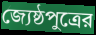
জ্যেষ্ঠপুত্রের